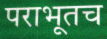
पराभूतच